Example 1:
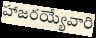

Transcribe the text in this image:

హాజరయ్యేవారి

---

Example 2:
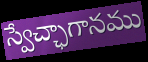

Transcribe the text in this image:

స్వేచ్ఛాగానము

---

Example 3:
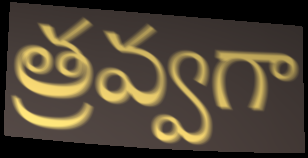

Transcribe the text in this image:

త్రవ్వగా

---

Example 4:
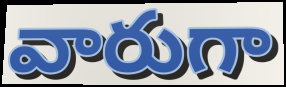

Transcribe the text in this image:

వారుగా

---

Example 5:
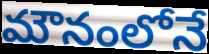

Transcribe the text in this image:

మౌనంలోనే